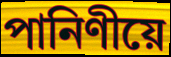
পানিণীয়ে